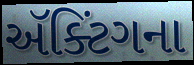
ઍક્ટિંગના